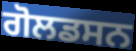
ਗੋਲਡਸਨ